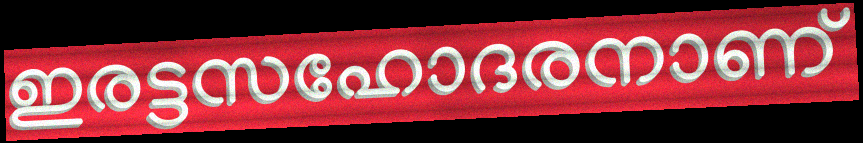
ഇരട്ടസഹോദരനാണ്